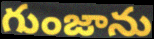
గుంజాను